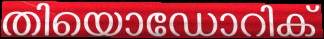
തിയൊഡോറിക്